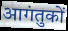
आगंतुकों